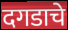
दगडाचे